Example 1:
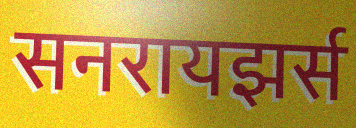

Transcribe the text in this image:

सनरायझर्स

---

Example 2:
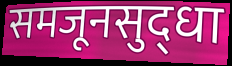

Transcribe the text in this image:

समजूनसुद्धा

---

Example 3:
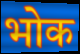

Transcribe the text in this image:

भोक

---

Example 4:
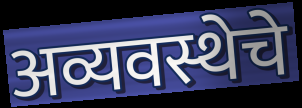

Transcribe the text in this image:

अव्यवस्थेचे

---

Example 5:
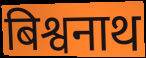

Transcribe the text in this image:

बिश्वनाथ